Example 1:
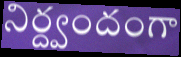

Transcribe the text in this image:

నిర్ద్వందంగా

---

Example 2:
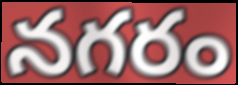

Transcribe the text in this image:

నగరం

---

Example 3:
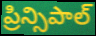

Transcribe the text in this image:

ప్రిన్సిపాల్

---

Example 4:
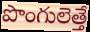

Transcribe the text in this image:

పొంగులెత్తే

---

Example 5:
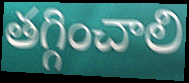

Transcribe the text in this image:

తగ్గించాలి